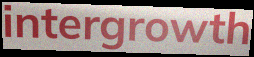
intergrowth